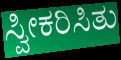
ಸ್ವೀಕರಿಸಿತು